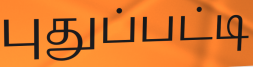
புதுப்பட்டி